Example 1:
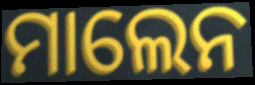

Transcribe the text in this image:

ମାଲେନ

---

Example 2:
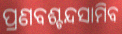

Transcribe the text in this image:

ପ୍ରଣବଶ୍ଚନ୍ଦସାମିବ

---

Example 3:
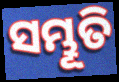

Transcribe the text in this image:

ସମ୍ଭୂତି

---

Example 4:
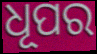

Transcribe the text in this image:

ଧୂପର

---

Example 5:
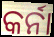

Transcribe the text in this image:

କର୍ନା